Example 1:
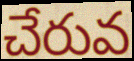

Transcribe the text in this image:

చేరువ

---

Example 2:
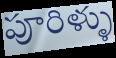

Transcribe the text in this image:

పూరిళ్ళు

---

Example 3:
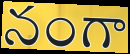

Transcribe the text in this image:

నంగా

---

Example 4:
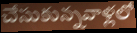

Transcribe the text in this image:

చేసుకున్నవాళ్లలో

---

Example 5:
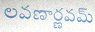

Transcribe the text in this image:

లవణార్ణవమ్